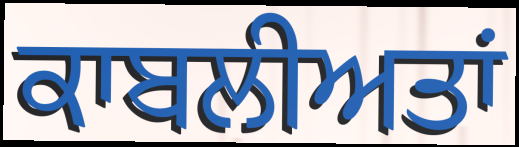
ਕਾਬਲੀਅਤਾਂ